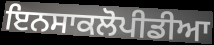
ਇਨਸਾਕਲੋਪੀਡੀਆ